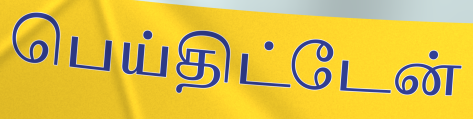
பெய்திட்டேன்